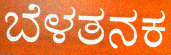
ಬೆಳತನಕ